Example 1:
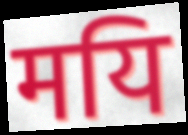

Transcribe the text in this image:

मयि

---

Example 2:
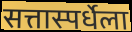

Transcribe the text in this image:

सत्तास्पर्धेला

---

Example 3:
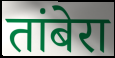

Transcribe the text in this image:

तांबेरा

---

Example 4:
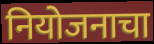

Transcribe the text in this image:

नियोजनाचा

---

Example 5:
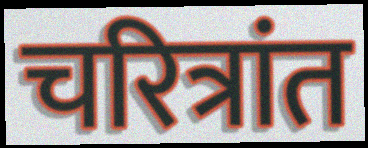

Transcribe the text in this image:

चरित्रांत